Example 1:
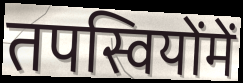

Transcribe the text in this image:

तपस्वियोंमें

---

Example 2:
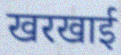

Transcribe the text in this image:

खरखाई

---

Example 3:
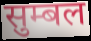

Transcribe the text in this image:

सुम्बल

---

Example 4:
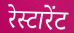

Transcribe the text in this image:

रेस्टारेंट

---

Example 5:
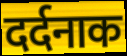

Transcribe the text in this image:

दर्दनाक